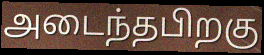
அடைந்தபிறகு